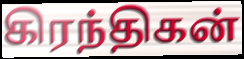
கிரந்திகன்